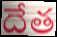
దేత